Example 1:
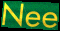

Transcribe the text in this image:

Nee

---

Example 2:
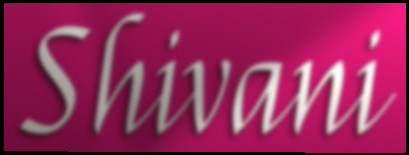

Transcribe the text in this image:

Shivani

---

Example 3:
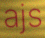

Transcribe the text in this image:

ajs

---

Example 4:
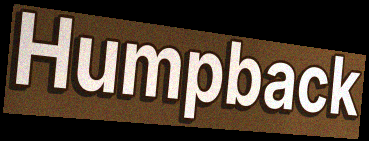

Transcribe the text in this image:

Humpback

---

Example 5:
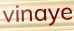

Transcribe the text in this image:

vinaye